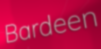
Bardeen